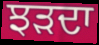
ਝੜਦਾ